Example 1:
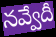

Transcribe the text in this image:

నవ్వేదీ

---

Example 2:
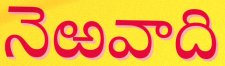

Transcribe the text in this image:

నెఱవాది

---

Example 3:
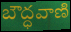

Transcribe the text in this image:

బౌద్ధవాణి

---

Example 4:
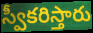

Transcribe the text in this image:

స్వీకరిస్తారు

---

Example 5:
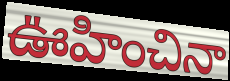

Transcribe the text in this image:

ఊహించినా